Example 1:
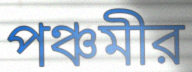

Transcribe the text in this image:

পঞ্চমীর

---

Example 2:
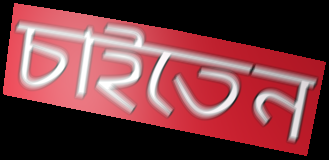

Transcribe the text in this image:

চাইতেন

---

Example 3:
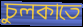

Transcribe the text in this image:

চুলকাতে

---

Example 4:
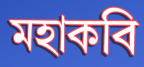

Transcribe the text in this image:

মহাকবি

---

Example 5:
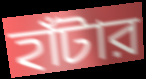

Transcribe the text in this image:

হাঁটার